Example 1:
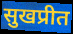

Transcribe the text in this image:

सुखप्रीत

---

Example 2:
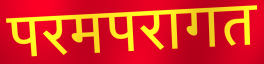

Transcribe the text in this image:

परमपरागत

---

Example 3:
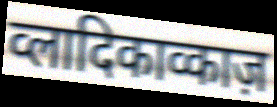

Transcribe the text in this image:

व्लादिकाव्काज़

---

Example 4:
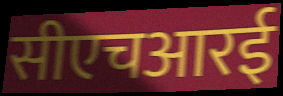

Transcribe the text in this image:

सीएचआरई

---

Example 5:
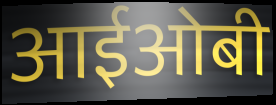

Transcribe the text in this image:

आईओबी